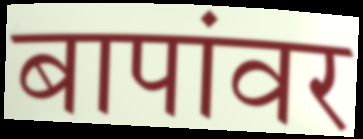
बापांवर